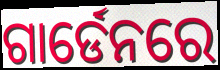
ଗାର୍ଡେନରେ